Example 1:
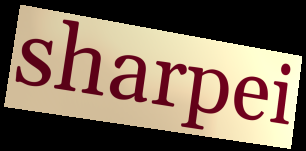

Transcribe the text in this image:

sharpei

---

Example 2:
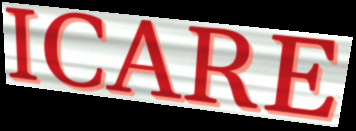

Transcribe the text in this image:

ICARE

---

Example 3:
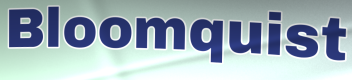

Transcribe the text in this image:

Bloomquist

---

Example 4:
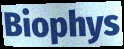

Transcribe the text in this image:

Biophys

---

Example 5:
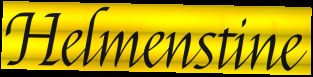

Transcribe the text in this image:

Helmenstine